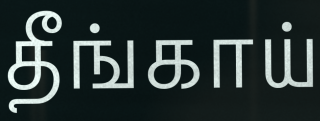
தீங்காய்